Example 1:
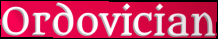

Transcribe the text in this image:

Ordovician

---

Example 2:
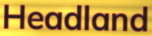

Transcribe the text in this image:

Headland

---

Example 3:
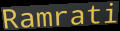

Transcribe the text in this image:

Ramrati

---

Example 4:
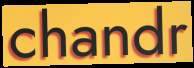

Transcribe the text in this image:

chandr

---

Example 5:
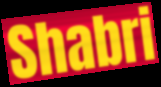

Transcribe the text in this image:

Shabri